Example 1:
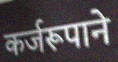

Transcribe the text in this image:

कर्जरूपाने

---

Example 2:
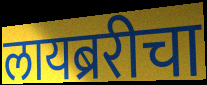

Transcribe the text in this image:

लायब्ररीचा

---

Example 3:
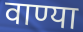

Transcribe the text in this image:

वाण्या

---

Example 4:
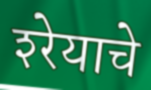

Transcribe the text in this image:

श्रेयाचे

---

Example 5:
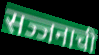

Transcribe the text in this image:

सज्जनाची